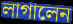
লাগালেন